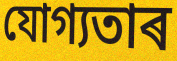
যোগ্যতাৰ